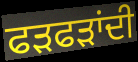
ਫੜਫੜਾਂਦੀ